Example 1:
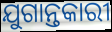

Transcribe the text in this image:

ଯୁଗାନ୍ତକାରୀ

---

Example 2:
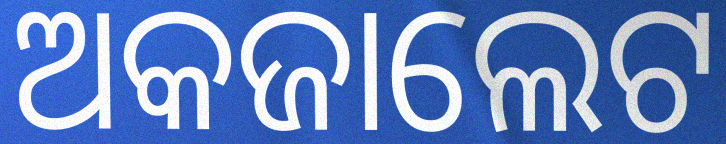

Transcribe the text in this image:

ଅକଜାଲେଟ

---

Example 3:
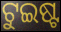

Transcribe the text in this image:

ଟୁଇଷ୍ଟ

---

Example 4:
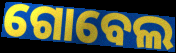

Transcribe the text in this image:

ଗୋବେଲ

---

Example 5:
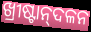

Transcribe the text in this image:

ଖ୍ରୀଷ୍ଟାନ୍‌ଦଳନ